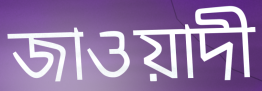
জাওয়াদী